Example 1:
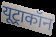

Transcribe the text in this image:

यूट्राकॉन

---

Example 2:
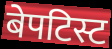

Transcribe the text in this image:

बेपटिस्ट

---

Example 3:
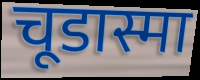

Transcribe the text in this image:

चूडास्मा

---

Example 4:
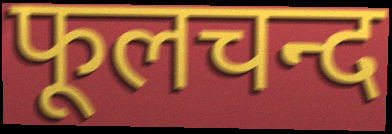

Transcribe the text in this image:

फूलचन्द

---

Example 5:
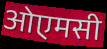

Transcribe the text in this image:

ओएमसी